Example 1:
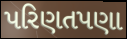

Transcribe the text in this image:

પરિણતપણા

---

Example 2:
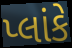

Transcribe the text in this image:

પ્લાંકે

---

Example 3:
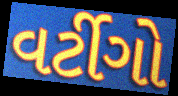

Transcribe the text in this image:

વર્ટીગો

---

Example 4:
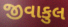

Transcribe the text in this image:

જીવાકુલ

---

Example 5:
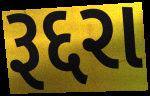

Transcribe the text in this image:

રૂદ્દરા